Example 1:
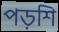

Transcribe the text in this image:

পড়শি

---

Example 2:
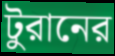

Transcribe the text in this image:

টুরানের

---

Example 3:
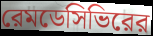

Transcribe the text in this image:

রেমডেসিভিরের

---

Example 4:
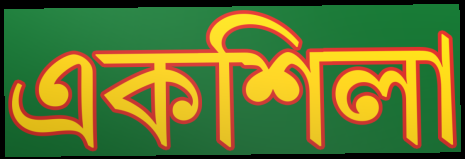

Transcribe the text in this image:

একশিলা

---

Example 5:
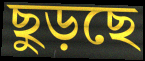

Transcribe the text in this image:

ছুড়ছে